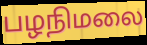
பழநிமலை